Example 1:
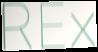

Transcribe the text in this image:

REx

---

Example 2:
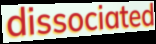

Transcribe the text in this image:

dissociated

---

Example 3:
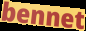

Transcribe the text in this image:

bennet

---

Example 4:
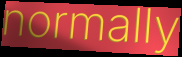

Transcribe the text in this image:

normally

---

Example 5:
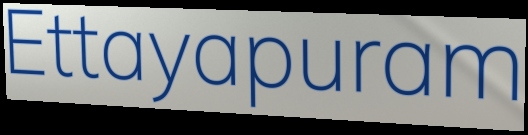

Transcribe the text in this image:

Ettayapuram